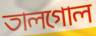
তালগোল